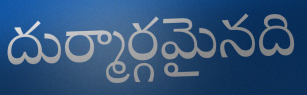
దుర్మార్గమైనది